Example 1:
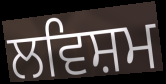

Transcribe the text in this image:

ਲਵਿਸ਼ਮ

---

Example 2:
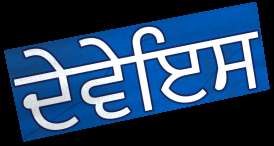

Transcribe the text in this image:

ਦੇਵੇਇਸ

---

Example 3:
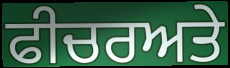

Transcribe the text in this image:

ਫੀਚਰਅਤੇ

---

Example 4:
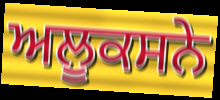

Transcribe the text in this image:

ਅਲੂਕਸਨੇ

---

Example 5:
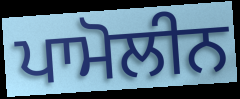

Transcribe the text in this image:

ਪਾਮੋਲੀਨ